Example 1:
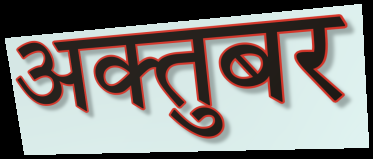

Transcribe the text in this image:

अक्तुबर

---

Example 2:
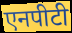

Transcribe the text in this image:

एनपीटी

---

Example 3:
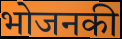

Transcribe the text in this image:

भोजनकी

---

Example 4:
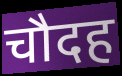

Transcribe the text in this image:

चौदह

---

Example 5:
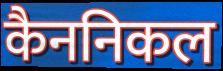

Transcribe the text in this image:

कैननिकल